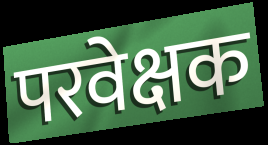
परवेक्षक